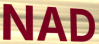
NAD